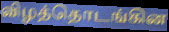
விழத்தொடங்கின